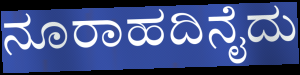
ನೂರಾಹದಿನೈದು